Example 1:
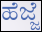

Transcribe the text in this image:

ಹೆಜ್ಜೆ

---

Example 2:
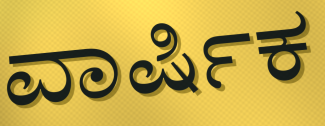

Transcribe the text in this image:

ವಾರ್ಷಿಕ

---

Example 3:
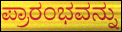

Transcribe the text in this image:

ಪ್ರಾರಂಭವನ್ನು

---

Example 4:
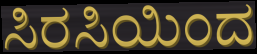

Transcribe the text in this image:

ಸಿರಸಿಯಿಂದ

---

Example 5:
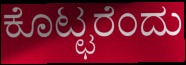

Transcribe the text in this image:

ಕೊಟ್ಟರೆಂದು